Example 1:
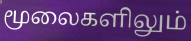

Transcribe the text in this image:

மூலைகளிலும்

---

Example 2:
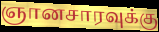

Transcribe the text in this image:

ஞானசாரவுக்கு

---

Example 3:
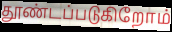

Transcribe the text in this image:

தூண்டப்படுகிறோம்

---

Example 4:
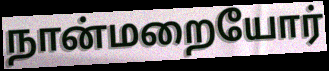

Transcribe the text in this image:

நான்மறையோர்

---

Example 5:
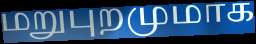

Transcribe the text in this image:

மறுபுறமுமாக